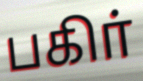
பகிர்